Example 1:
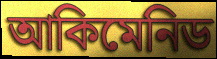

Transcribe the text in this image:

আকিমেনিড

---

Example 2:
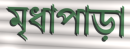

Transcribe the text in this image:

মৃধাপাড়া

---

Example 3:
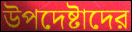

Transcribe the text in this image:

উপদেষ্টাদের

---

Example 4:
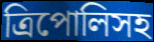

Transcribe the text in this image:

ত্রিপোলিসহ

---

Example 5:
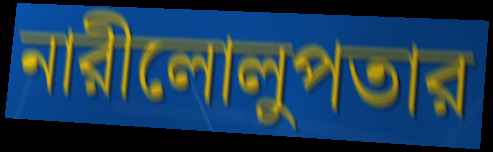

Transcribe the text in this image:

নারীলোলুপতার